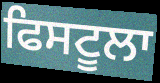
ਫਿਸਟੂਲਾ